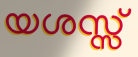
യശസ്സ്